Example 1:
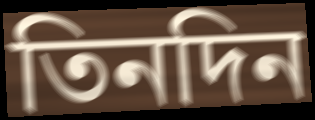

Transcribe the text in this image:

তিনদিন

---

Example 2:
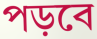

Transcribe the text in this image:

পড়বে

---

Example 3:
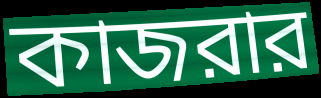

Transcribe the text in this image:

কাজরার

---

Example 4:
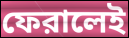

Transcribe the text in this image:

ফেরালেই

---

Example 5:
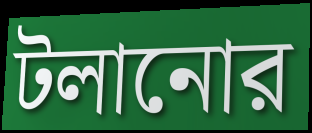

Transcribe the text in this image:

টলানোর